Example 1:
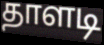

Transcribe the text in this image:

தாளடி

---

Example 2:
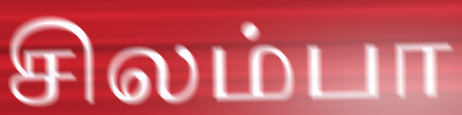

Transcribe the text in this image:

சிலம்பா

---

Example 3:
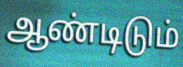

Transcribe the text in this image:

ஆண்டிடும்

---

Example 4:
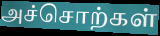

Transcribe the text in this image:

அச்சொற்கள்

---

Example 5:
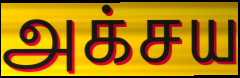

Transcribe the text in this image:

அக்சய